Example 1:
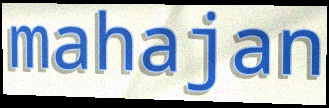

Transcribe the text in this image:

mahajan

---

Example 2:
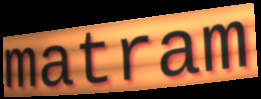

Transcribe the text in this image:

matram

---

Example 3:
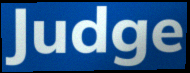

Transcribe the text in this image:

Judge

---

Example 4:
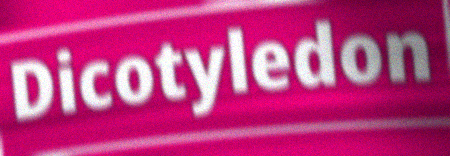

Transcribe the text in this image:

Dicotyledon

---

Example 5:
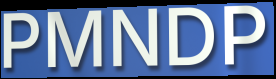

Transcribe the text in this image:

PMNDP